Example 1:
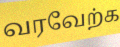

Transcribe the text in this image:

வரவேற்க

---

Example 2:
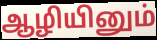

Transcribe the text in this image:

ஆழியினும்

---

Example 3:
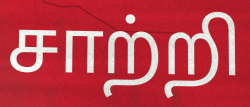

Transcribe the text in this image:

சாற்றி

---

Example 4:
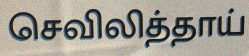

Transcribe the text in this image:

செவிலித்தாய்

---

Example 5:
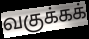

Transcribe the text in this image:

வகுக்கக்